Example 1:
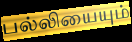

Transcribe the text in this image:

பல்லியையும்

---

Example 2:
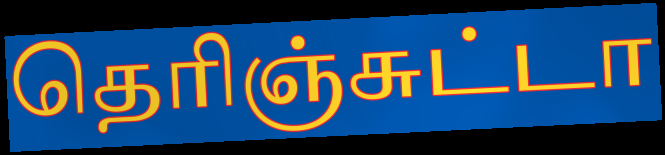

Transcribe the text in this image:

தெரிஞ்சுட்டா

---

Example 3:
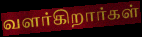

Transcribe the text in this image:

வளர்கிறார்கள்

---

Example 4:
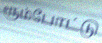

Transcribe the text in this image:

ரூம்போட்டு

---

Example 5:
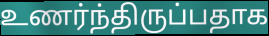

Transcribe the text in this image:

உணர்ந்திருப்பதாக